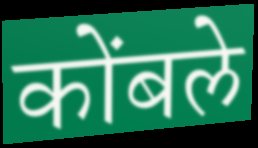
कोंबले